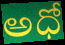
అధో